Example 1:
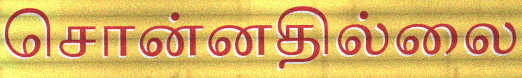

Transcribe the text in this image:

சொன்னதில்லை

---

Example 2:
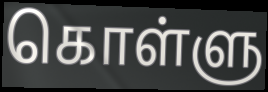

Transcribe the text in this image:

கொள்ளு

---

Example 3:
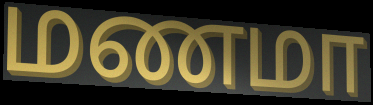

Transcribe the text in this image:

மணமா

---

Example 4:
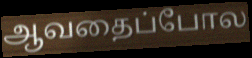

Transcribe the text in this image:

ஆவதைப்போல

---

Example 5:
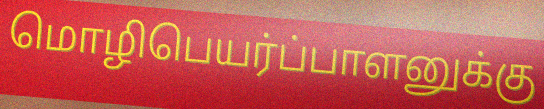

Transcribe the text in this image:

மொழிபெயர்ப்பாளனுக்கு